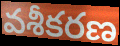
వశీకరణ